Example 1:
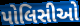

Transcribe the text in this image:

પોલિસીઓ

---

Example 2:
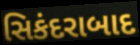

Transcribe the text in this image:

સિકંદરાબાદ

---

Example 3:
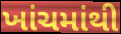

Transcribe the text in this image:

ખાંચમાંથી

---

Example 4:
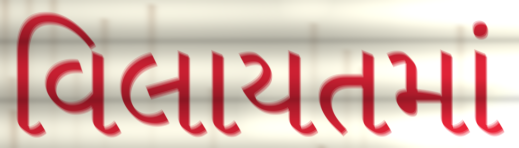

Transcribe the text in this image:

વિલાયતમાં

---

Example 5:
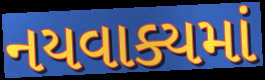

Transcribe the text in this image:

નયવાક્યમાં